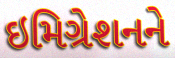
ઇમિગ્રેશનને